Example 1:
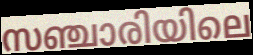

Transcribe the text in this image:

സഞ്ചാരിയിലെ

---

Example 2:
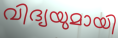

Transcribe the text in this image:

വിദ്യയുമായി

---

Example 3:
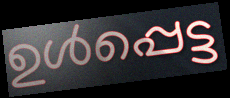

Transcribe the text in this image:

ഉൾപ്പെട്ട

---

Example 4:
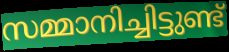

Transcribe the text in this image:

സമ്മാനിച്ചിട്ടുണ്ട്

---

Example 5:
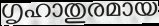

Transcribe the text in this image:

ഗൃഹാതുരമായ